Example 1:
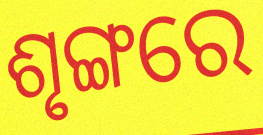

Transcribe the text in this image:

ଶୃଙ୍ଗରେ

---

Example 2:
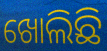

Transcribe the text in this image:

ଖୋଲିଛି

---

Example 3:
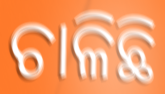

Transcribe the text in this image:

ଚାଳିଛି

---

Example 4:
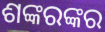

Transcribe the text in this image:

ଶଙ୍କରଙ୍କର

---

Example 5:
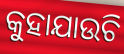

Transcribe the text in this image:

କୁହାଯାଉଚି